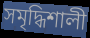
সমৃদ্ধিশালী